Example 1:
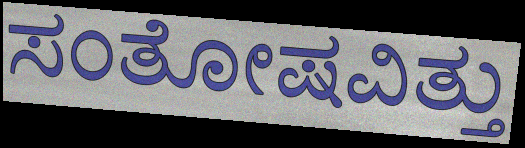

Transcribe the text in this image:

ಸಂತೋಷವಿತ್ತು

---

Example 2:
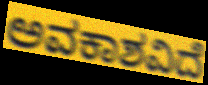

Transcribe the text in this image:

ಅವಕಾಶವಿದೆ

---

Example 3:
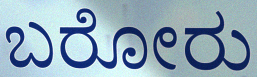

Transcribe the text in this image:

ಬರೋರು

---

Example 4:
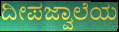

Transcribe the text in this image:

ದೀಪಜ್ವಾಲೆಯ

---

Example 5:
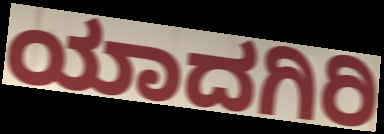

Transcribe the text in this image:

ಯಾದಗಿರಿ